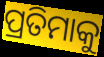
ପ୍ରତିମାକୁ